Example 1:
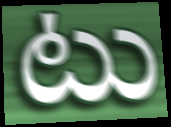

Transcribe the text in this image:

టు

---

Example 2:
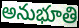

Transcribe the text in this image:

అనుభూతి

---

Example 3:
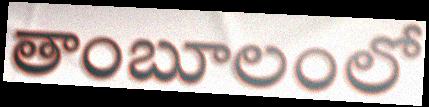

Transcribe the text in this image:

తాంబూలంలో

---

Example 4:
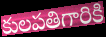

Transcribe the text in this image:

కులపతిగారికి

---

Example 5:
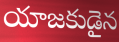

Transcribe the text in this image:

యాజకుడైన